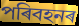
পৰিবহনৰ